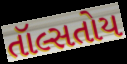
તૉલ્સતોય